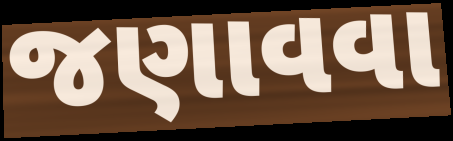
જણાવવા